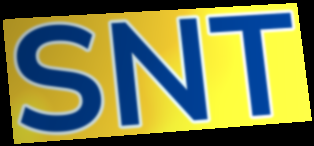
SNT